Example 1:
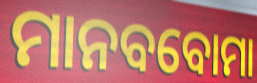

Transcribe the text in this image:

ମାନବବୋମା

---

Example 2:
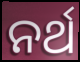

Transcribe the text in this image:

ନର୍ଥ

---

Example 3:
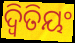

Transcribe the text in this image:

ଦ୍ୱିତିୟଂ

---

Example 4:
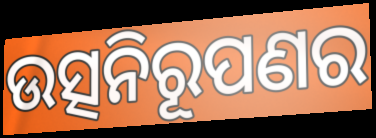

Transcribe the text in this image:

ଉତ୍ସନିରୂପଣର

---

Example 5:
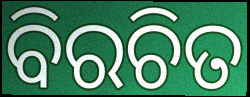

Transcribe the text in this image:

ବିରଚିତ